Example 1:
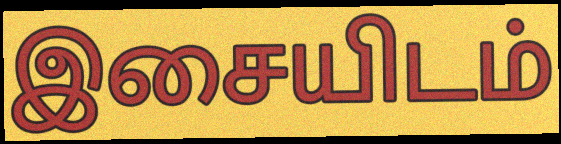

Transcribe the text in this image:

இசையிடம்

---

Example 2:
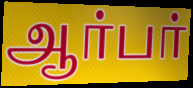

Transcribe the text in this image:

ஆர்பர்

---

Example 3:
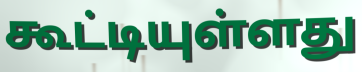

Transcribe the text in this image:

கூட்டியுள்ளது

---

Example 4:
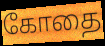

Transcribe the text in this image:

கோதை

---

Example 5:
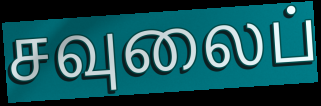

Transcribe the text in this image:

சவுலைப்